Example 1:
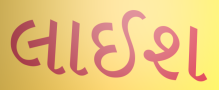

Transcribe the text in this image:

લાઈશ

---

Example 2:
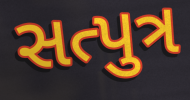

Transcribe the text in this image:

સત્પુત્ર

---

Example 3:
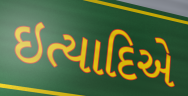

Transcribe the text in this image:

ઇત્યાદિએ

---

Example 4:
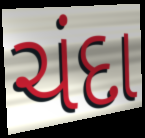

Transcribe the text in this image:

ચંદા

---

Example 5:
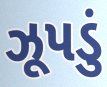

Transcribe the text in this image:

ઝૂપડું